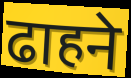
ढाहने